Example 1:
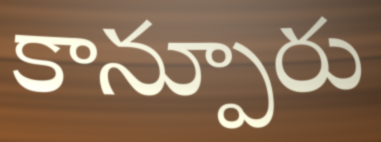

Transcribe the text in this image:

కాన్పూరు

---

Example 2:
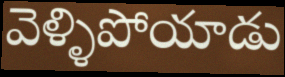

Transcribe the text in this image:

వెళ్ళిపోయాడు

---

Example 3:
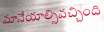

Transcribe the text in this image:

మానేయాల్సివచ్చింది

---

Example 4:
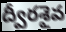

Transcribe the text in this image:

ద్వీరశైవ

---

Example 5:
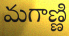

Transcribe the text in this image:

మగాణ్ణి